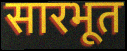
सारभूत